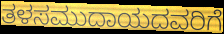
ತಳಸಮುದಾಯದವರಿಗೆ